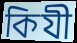
কিযী